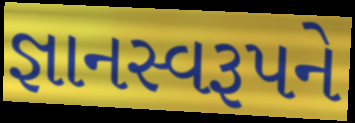
જ્ઞાનસ્વરૂપને